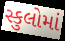
સ્કુલોમાં